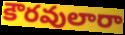
కౌరవులారా